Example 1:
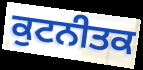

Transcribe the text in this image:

ਕੁਟਨੀਤਕ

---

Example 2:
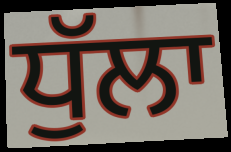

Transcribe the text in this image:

ਧੁੱਲਾ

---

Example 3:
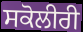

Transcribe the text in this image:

ਸਕੋਲੀਰੀ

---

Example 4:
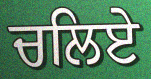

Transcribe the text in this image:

ਚਲਿਏ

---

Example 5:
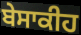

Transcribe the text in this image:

ਬੇਸਾਕੀਹ